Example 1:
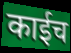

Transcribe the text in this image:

काईच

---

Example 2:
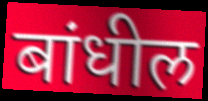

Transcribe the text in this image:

बांधील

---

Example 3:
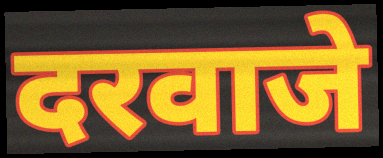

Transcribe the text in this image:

दरवाजे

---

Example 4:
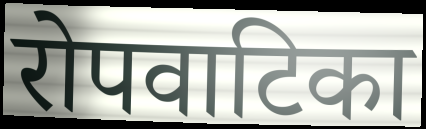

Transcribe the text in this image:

रोपवाटिका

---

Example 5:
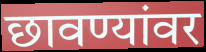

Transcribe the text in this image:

छावण्यांवर